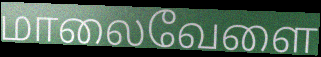
மாலைவேளை